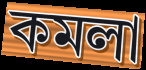
কমলা